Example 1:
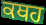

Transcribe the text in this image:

ਕਥਹ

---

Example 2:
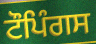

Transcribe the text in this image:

ਟੌਪਿੰਗਸ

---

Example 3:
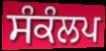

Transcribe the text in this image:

ਸੰਕੰਲਪ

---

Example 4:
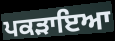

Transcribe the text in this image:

ਪਕੜਾਇਆ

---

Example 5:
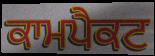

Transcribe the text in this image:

ਕਾਮਪੈਕਟ